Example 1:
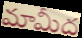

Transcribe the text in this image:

మామీద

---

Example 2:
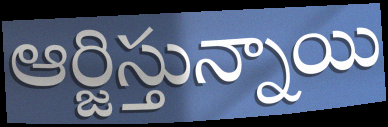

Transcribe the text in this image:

ఆర్జిస్తున్నాయి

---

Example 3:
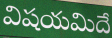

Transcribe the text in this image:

విషయమిదే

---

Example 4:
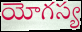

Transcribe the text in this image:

యోగస్య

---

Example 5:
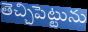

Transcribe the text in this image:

తెచ్చిపెట్టును